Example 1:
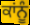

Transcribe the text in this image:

ਕਾਂਨੂੰ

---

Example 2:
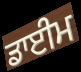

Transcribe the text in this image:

ਡਾਈਮ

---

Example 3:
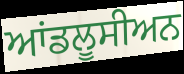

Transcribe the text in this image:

ਆਂਡਲੂਸੀਅਨ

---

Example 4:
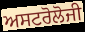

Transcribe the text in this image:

ਅਸਟਰੋਲੋਜੀ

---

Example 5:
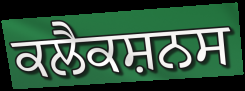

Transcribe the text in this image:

ਕਲੈਕਸ਼ਨਸ